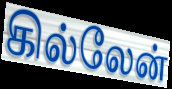
கில்லேன்